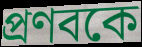
প্রণবকে